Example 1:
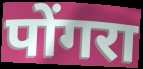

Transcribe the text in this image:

पोंगरा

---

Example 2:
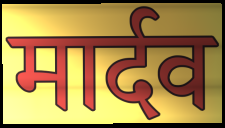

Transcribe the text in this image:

मार्दव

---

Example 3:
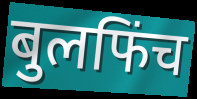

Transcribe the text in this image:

बुलफिंच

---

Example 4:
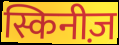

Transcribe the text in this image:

स्किनीज़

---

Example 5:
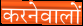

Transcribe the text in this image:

करनेवालों